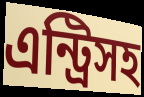
এন্ট্রিসহ